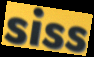
siss